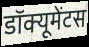
डॉक्यूमेंटस